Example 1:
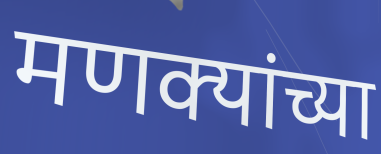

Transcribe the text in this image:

मणक्यांच्या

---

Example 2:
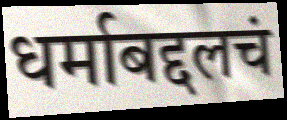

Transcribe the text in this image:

धर्माबद्दलचं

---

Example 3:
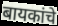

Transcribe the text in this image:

बायकांचे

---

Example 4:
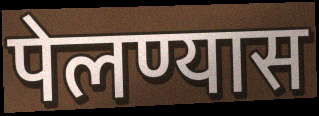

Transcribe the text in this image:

पेलण्यास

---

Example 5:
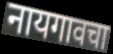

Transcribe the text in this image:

नायगावचा